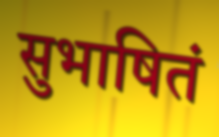
सुभाषितं